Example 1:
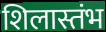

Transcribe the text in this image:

शिलास्तंभ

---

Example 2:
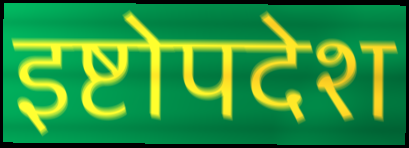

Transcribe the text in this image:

इष्टोपदेश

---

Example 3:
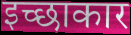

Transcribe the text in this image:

इच्छाकार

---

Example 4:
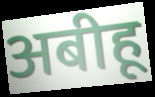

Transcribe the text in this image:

अबीहू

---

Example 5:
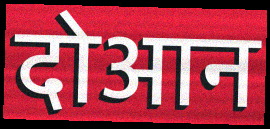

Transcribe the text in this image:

दोआन